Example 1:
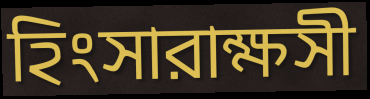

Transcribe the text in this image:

হিংসারাক্ষসী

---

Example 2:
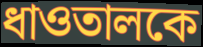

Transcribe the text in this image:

ধাওতালকে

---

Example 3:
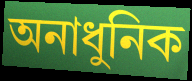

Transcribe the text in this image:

অনাধুনিক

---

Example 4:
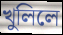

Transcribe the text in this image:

খুলিলে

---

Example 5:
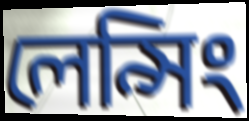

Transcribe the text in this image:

লেন্সিং